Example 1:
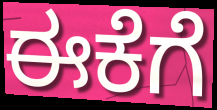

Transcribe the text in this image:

ಈಕೆಗೆ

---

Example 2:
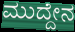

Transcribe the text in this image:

ಮುದ್ದೇನ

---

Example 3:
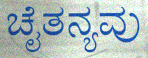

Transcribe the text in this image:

ಚೈತನ್ಯವು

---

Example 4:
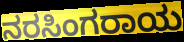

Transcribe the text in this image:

ನರಸಿಂಗರಾಯ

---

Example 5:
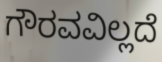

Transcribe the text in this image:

ಗೌರವವಿಲ್ಲದೆ